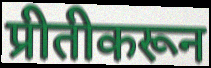
प्रीतीकरून